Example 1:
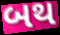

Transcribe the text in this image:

બથ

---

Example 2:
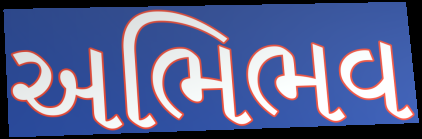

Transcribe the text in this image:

અભિભવ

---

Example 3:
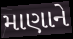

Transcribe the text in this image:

માણાને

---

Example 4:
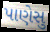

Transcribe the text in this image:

પાણેસુ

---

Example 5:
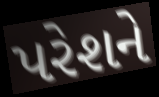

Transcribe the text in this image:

પરેશને